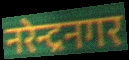
नरेन्द्रनगर